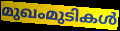
മുഖംമുടികൾ